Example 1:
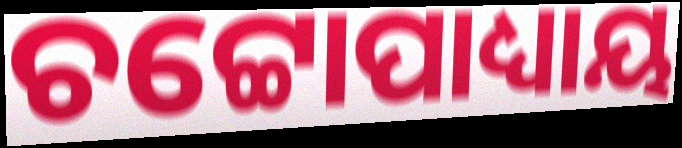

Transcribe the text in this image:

ଚଟ୍ଟୋପାଧ୍ୟାୟ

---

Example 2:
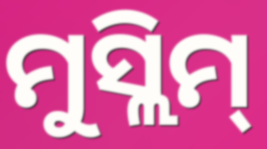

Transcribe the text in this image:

ମୁସ୍ଲିମ୍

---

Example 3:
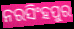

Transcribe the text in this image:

ନରସିଂହପୁର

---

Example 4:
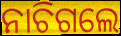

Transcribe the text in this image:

ନାଚିଗଲେ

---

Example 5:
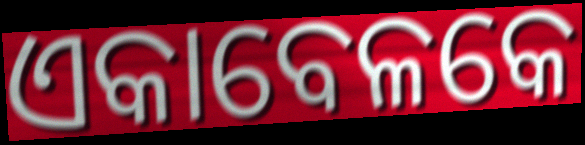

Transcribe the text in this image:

ଏକାବେଳକେ